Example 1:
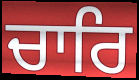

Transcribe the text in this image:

ਚਾਰਿ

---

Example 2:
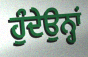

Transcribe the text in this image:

ਹੁੰਦੇਉਨ੍ਹਾਂ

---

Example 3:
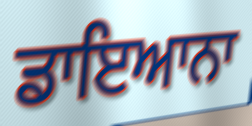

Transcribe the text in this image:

ਡਾਇਆਨਾ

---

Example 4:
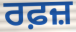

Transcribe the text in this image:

ਰਫ਼ਜ਼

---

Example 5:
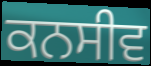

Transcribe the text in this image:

ਕਨਸੀਵ